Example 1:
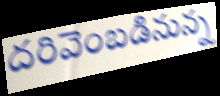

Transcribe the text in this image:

దరివెంబడినున్న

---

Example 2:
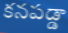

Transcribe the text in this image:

కనపడ్డా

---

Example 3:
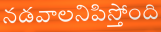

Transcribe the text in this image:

నడవాలనిపిస్తోంది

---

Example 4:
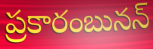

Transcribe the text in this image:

ప్రకారంబునన్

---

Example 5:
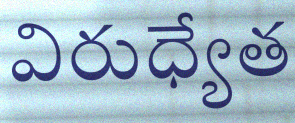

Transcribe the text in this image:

విరుధ్యేత